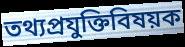
তথ্যপ্রযুক্তিবিষয়ক